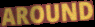
AROUND